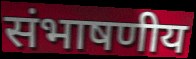
संभाषणीय